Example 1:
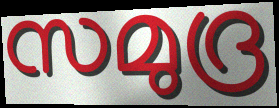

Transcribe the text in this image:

സമുദ്ര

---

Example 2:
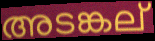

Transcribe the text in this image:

അടങ്കല്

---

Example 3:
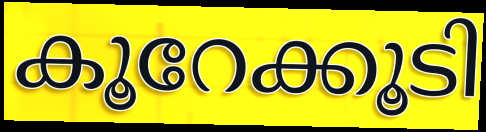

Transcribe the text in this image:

കൂറേക്കൂടി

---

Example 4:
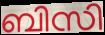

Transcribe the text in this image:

ബിസി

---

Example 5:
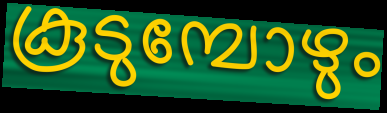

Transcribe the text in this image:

കൂടുമ്പോഴും